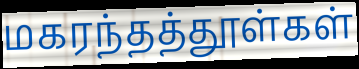
மகரந்தத்தூள்கள்